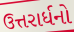
ઉત્તરાર્ધનો